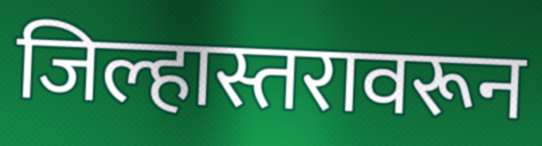
जिल्हास्तरावरून